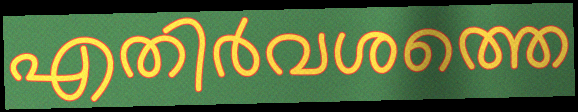
എതിർവശത്തെ